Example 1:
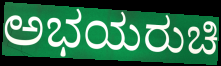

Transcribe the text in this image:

ಅಭಯರುಚಿ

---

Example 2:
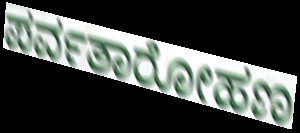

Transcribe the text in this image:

ಪರ್ವತಾರೋಹಣ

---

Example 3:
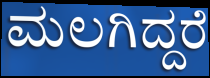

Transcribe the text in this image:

ಮಲಗಿದ್ದರೆ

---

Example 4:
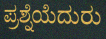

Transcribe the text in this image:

ಪ್ರಶ್ನೆಯೆದುರು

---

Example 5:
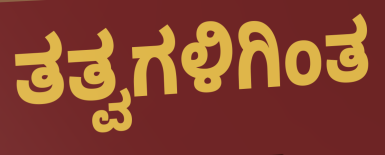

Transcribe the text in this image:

ತತ್ವಗಳಿಗಿಂತ